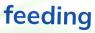
feeding